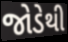
જોડેથી